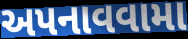
અપનાવવામા